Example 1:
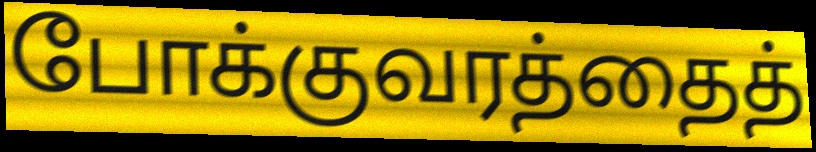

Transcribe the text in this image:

போக்குவரத்தைத்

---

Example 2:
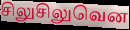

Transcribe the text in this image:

சிலுசிலுவென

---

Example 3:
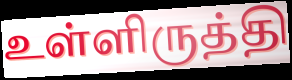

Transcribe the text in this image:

உள்ளிருத்தி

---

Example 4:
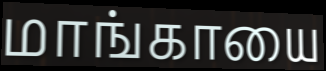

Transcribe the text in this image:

மாங்காயை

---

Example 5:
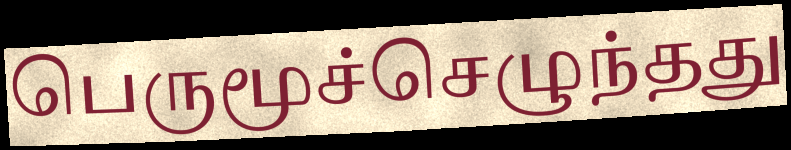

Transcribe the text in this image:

பெருமூச்செழுந்தது